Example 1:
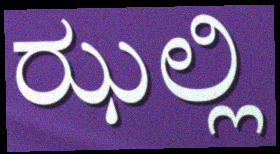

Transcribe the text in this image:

ಝಲ್ಲಿ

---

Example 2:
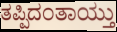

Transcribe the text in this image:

ತಪ್ಪಿದಂತಾಯ್ತು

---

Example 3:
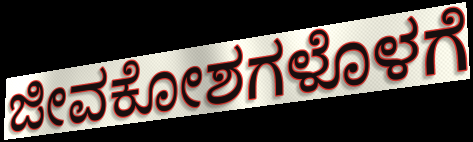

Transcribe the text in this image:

ಜೀವಕೋಶಗಳೊಳಗೆ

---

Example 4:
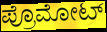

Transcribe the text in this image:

ಪ್ರೊಮೋಟ್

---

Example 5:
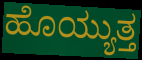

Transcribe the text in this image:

ಹೊಯ್ಯುತ್ತ